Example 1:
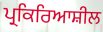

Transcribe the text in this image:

ਪ੍ਰਕਿਰਿਆਸ਼ੀਲ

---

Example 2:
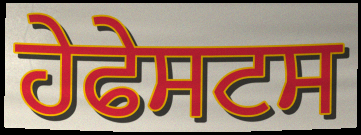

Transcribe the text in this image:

ਹੇਫੇਸਟਸ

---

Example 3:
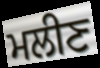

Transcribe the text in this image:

ਮਲੀਣ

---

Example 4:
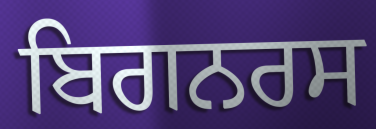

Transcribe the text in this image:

ਬਿਗਨਰਸ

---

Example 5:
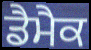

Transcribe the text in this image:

ਡੈਮੈਕ